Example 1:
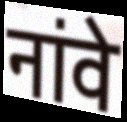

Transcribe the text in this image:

नांवे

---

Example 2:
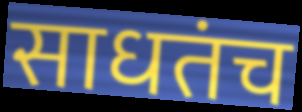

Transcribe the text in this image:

साधतंच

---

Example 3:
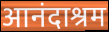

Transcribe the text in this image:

आनंदाश्रम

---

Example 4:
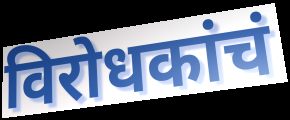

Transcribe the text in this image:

विरोधकांचं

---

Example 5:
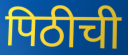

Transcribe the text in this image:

पिठीची